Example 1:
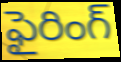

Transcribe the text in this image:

ఫైరింగ్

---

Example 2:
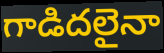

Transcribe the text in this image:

గాడిదలైనా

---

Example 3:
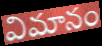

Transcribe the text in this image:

విమానం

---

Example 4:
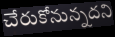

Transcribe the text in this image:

చేరుకోనున్నదని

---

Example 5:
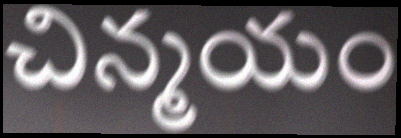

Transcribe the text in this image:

చిన్మయం